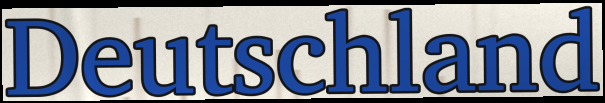
Deutschland